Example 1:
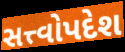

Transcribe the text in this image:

સત્ત્વોપદેશ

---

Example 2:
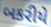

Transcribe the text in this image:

બકરીયે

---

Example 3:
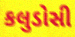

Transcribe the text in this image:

કલુડોસી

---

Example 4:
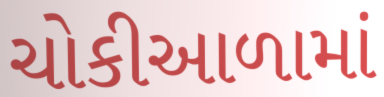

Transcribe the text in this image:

ચોકીઆળામાં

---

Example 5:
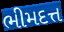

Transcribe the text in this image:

ભીમદત્ત